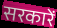
सरकारें